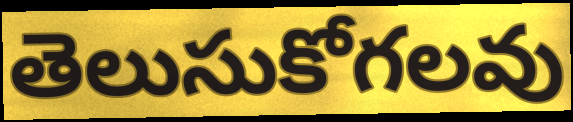
తెలుసుకోగలవు